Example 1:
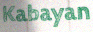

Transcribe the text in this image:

Kabayan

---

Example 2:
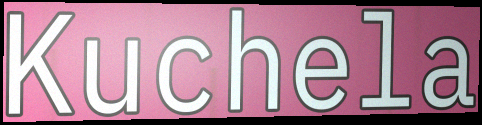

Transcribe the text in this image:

Kuchela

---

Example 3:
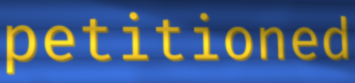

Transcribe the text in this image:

petitioned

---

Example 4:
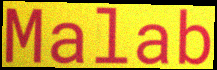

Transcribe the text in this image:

Malab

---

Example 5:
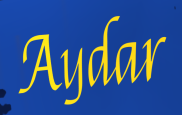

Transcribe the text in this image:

Aydar